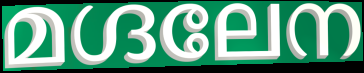
മഗ്ദലേന